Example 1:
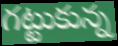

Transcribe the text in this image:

గట్టుకున్న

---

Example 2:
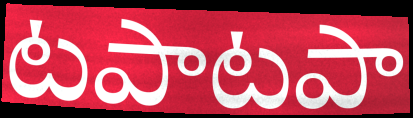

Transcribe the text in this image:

టపాటపా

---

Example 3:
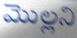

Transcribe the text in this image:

మొల్లని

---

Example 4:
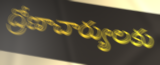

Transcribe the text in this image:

ద్రోణాచార్యులకు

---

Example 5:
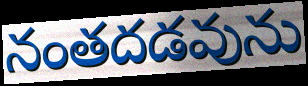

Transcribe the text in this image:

నంతదడవును